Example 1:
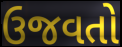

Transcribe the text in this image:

ઉજવતો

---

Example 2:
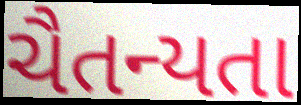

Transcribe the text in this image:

ચૈતન્યતા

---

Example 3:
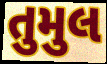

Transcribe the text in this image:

તુમુલ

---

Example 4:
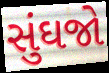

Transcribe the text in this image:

સુંઘજો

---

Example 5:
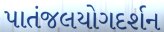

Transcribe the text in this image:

પાતંજલયોગદર્શન